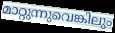
മാറ്റുന്നുവെങ്കിലും